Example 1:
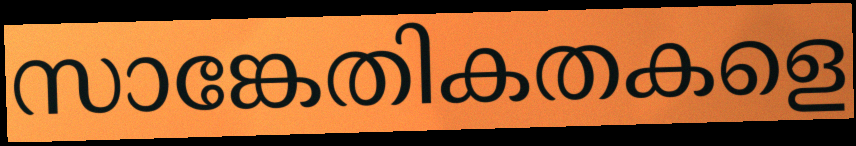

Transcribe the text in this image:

സാങ്കേതികതകളെ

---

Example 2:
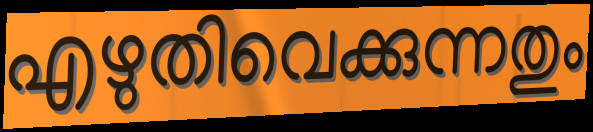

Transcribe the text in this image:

എഴുതിവെക്കുന്നതും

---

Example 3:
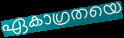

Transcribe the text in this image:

ഏകാഗ്രതയെ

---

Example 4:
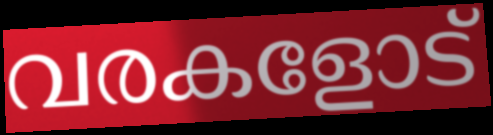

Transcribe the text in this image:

വരകളോട്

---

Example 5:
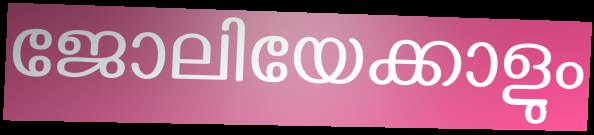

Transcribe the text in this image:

ജോലിയേക്കാളും